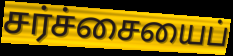
சர்ச்சையைப்